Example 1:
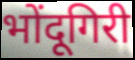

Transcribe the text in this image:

भोंदूगिरी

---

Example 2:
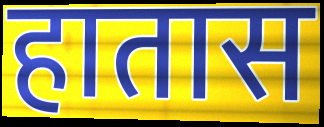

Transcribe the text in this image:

हातास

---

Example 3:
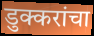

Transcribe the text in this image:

डुक्करांचा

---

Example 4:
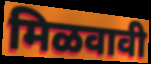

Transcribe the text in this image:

मिळवावी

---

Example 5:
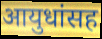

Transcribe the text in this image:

आयुधांसह